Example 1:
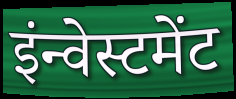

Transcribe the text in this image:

इंन्वेस्टमेंट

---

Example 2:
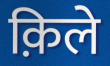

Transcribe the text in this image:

क़िले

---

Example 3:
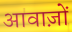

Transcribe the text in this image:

आवाज़ों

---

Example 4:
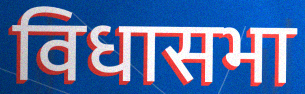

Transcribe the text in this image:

विधासभा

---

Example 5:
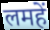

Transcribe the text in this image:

लमहें